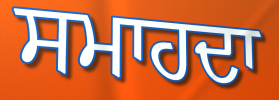
ਸਮਾਹਦਾ